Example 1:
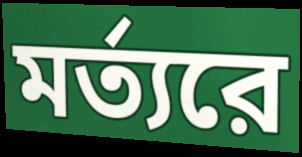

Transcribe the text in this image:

মর্ত্যরে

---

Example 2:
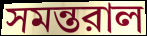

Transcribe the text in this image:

সমন্তরাল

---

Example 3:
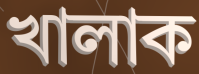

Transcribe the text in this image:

খালাক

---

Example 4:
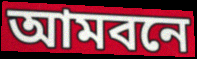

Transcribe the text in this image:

আমবনে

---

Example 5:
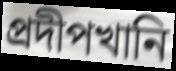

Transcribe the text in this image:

প্রদীপখানি